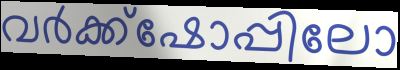
വർക്ക്ഷോപ്പിലോ